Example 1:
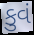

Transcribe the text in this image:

કુવં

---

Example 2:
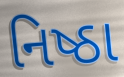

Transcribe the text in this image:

નિષ્ઠા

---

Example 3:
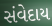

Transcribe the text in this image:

સંવેદાય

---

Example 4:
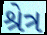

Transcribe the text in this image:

શ્રેત્ર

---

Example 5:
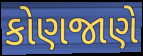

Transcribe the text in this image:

કોણજાણે